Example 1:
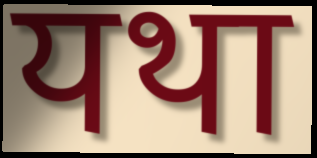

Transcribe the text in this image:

यथा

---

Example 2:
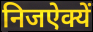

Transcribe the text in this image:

निजऐक्यें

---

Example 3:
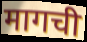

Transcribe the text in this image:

मागची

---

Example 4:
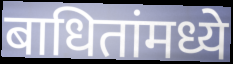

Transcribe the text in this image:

बाधितांमध्ये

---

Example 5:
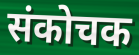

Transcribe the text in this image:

संकोचक